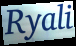
Ryali